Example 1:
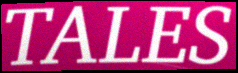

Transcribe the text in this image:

TALES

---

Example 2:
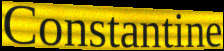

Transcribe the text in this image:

Constantine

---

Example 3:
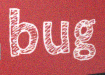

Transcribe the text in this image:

bug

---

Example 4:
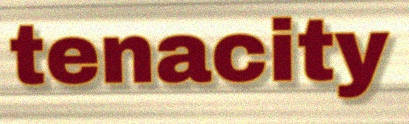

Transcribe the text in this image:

tenacity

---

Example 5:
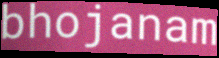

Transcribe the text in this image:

bhojanam